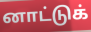
னாட்டுக்